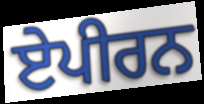
ਏਪੀਰਨ